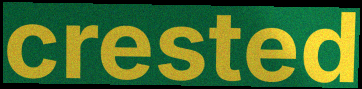
crested